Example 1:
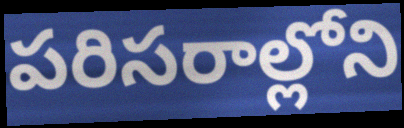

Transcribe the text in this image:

పరిసరాల్లోని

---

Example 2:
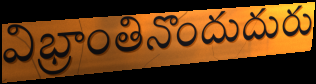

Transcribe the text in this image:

విభ్రాంతినొందుదురు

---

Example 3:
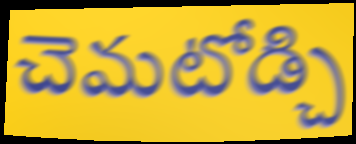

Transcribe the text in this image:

చెమటోడ్చి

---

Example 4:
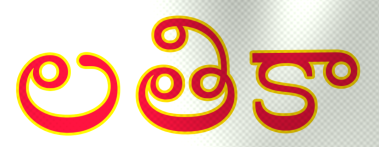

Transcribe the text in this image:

లతికా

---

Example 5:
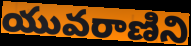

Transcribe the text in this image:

యువరాణిని